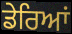
ਡੇਰਿਆਂ